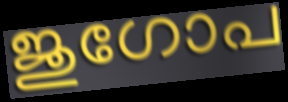
ജുഗോപ